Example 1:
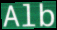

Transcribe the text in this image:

Alb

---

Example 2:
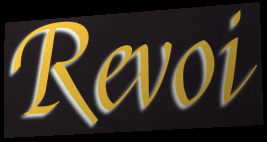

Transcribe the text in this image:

Revoi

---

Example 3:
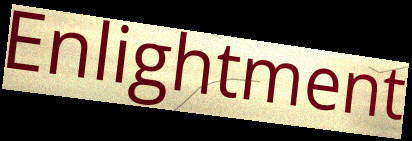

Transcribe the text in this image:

Enlightment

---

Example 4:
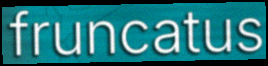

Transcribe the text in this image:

fruncatus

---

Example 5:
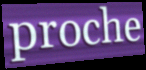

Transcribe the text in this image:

proche